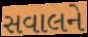
સવાલને